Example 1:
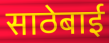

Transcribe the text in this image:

साठेबाई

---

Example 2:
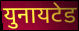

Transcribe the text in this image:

युनायटेड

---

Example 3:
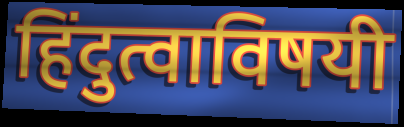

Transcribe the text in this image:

हिंदुत्वाविषयी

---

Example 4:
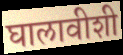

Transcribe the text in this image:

घालावीशी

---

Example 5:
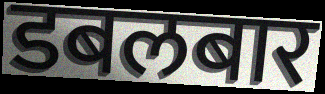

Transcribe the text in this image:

डबलबार